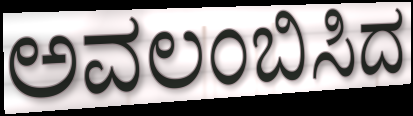
ಅವಲಂಬಿಸಿದ